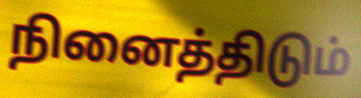
நினைத்திடும்